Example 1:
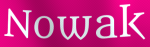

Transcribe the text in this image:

Nowak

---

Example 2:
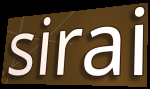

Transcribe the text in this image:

sirai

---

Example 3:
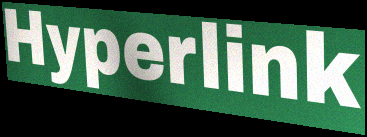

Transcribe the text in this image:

Hyperlink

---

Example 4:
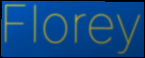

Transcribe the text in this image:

Florey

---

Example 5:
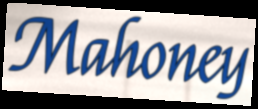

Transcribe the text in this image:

Mahoney